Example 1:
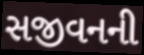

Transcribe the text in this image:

સજીવનની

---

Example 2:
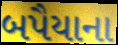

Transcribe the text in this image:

બપૈયાના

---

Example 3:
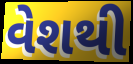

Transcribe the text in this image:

વેશથી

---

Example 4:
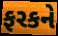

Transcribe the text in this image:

ફરકને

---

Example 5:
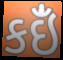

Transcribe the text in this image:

કઇઁં